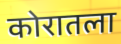
कोरातला